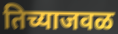
तिच्याजवळ